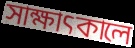
সাক্ষাৎকালে